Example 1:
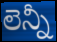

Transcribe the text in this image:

లెన్నీ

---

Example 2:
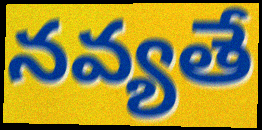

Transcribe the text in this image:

నవ్యతే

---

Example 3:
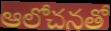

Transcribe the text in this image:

ఆలోచనతో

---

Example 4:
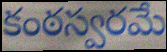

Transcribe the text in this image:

కంఠస్వరమే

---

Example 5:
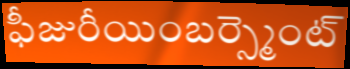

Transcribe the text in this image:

ఫీజురీయింబర్స్మెంట్